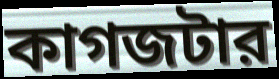
কাগজটার